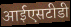
आईएसटीडी